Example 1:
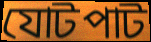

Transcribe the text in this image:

যোটপাট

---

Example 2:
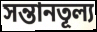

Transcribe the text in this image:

সন্তানতূল্য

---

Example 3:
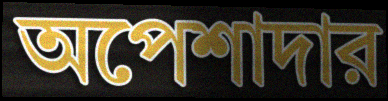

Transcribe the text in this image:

অপেশাদার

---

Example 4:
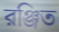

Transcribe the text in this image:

রঞ্জিত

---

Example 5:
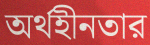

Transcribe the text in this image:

অর্থহীনতার